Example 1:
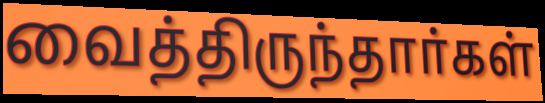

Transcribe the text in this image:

வைத்திருந்தார்கள்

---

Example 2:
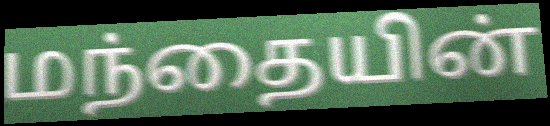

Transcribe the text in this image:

மந்தையின்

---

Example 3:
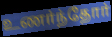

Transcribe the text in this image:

உணர்ந்தோர்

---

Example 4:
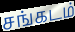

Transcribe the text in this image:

சங்கடம்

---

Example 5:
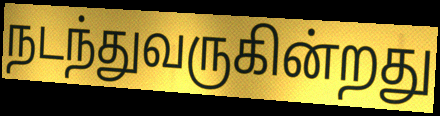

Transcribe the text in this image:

நடந்துவருகின்றது